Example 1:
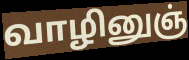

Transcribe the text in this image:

வாழினுஞ்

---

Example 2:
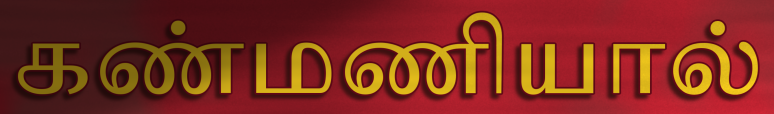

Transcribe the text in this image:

கண்மணியால்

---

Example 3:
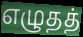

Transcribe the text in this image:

எழுதத்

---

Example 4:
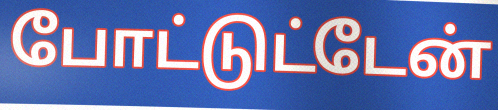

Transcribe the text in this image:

போட்டுட்டேன்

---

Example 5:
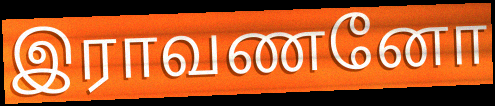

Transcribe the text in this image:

இராவணனோ